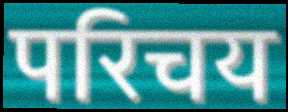
परिचय